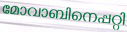
മോവാബിനെപ്പറ്റി